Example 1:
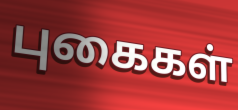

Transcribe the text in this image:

புகைகள்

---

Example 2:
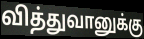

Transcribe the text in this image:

வித்துவானுக்கு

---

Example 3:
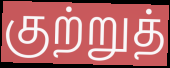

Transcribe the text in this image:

குற்றுத்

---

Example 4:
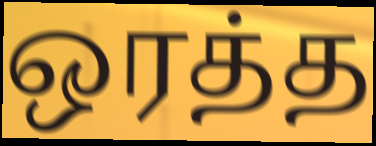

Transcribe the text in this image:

ஒரத்த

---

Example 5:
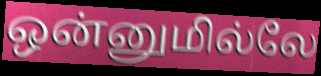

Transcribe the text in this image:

ஒன்னுமில்லே